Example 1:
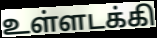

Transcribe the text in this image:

உள்ளடக்கி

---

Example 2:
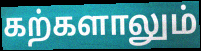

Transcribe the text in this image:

கற்களாலும்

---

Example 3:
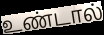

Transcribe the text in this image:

உண்டால்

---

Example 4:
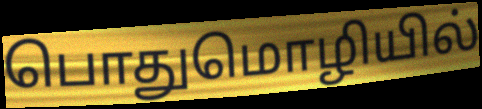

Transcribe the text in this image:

பொதுமொழியில்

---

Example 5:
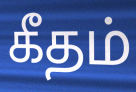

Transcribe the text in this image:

கீதம்